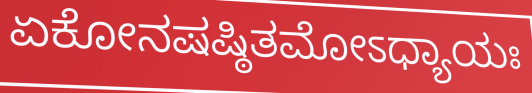
ಏಕೋನಷಷ್ಠಿತಮೋಽಧ್ಯಾಯಃ